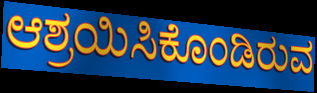
ಆಶ್ರಯಿಸಿಕೊಂಡಿರುವ